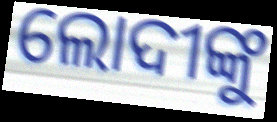
ଲୋଦୀଙ୍କୁ